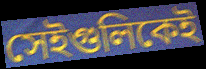
সেইগুলিকেই